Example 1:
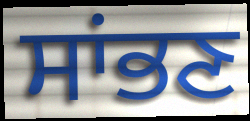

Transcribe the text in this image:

ਸਾਂਭਣ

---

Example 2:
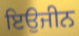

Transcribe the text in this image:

ਇਉਜੀਨ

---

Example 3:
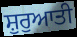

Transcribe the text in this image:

ਸ਼ੁਰੁਆਤੀ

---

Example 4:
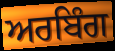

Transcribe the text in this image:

ਅਰਬਿੰਗ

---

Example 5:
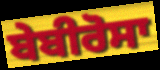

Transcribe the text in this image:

ਬੇਬੀਰੋਸਾ